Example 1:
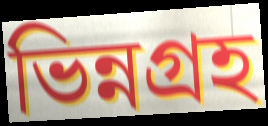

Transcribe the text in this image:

ভিন্নগ্রহ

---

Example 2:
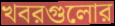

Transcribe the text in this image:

খবরগুলোর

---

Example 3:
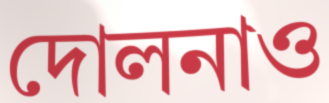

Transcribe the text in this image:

দোলনাও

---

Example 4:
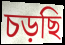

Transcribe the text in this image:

চড়ছি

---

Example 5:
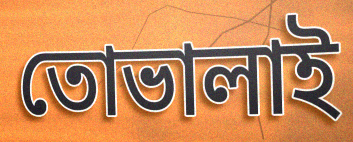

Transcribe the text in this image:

তোভালাই